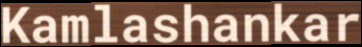
Kamlashankar